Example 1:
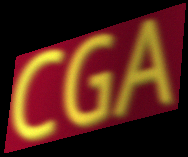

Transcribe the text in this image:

CGA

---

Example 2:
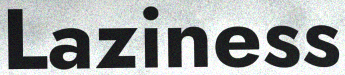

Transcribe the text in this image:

Laziness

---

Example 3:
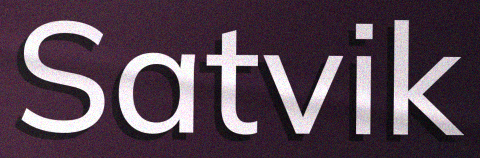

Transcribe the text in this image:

Satvik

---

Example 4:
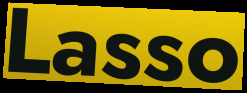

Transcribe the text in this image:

Lasso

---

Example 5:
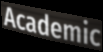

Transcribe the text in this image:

Academic